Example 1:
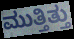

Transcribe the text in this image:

ಮುತ್ತಿತ್ತು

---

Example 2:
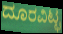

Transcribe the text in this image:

ದೂರವಿಟ್ಟ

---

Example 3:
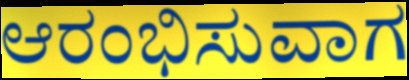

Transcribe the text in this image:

ಆರಂಭಿಸುವಾಗ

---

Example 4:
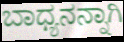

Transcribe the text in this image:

ಬಾಧ್ಯನನ್ನಾಗಿ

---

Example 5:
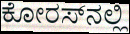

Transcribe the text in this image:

ಕೋರಸ್‌ನಲ್ಲಿ